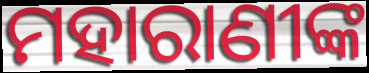
ମହାରାଣୀଙ୍କ